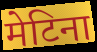
मेटिना